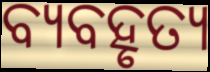
ବ୍ୟବହୃତ୍ୟ